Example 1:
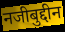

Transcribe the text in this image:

नजीबुद्दीन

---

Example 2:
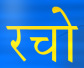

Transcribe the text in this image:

रचो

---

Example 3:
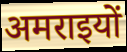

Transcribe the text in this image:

अमराइयों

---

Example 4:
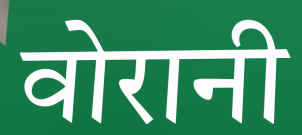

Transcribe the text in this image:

वोरानी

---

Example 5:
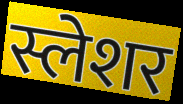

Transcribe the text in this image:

स्लेशर